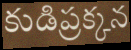
కుడిప్రక్కన